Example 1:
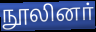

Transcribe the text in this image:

நூலினர்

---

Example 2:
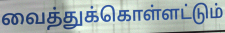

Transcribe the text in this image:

வைத்துக்கொள்ளட்டும்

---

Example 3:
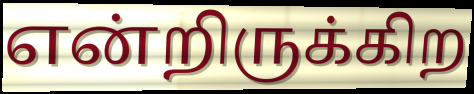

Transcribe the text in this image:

என்றிருக்கிற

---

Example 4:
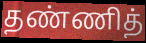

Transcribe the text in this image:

தண்ணித்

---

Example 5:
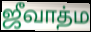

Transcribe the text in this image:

ஜீவாத்ம